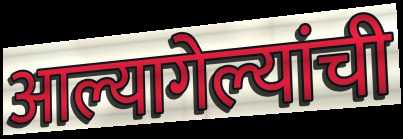
आल्यागेल्यांची